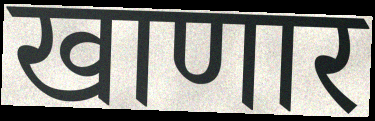
खाणार